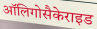
ऑलिगोसैकेराइड